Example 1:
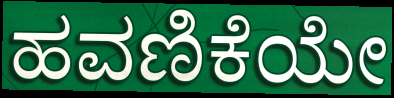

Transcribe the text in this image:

ಹವಣಿಕೆಯೇ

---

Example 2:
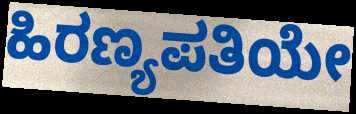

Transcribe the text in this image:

ಹಿರಣ್ಯಪತಿಯೇ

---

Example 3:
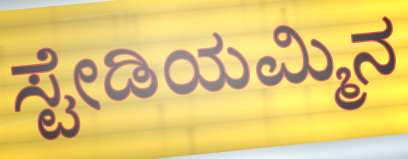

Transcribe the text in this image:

ಸ್ಟೇಡಿಯಮ್ಮಿನ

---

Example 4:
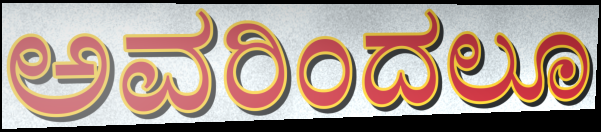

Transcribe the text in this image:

ಅವರಿಂದಲೂ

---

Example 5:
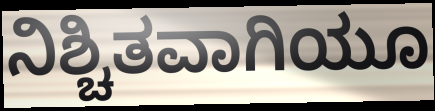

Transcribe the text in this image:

ನಿಶ್ಚಿತವಾಗಿಯೂ